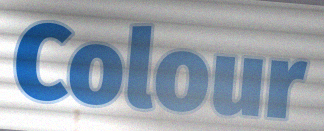
Colour